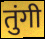
तुंगी